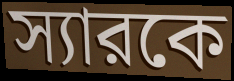
স্যারকে